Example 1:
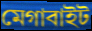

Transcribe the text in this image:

মেগাবাইট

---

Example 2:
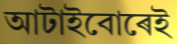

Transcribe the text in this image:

আটাইবোৰেই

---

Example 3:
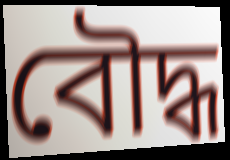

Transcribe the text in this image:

বৌদ্ধ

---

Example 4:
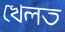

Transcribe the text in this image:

খেলত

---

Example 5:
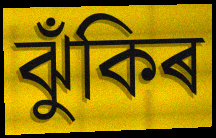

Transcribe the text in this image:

ঝুঁকিৰ